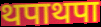
थपाथपा